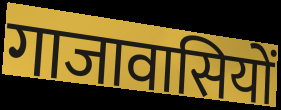
गाजावासियों